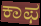
ಕಾಫ